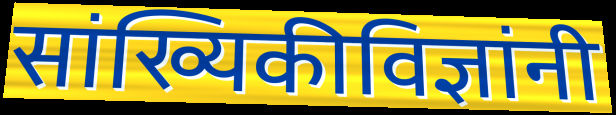
सांख्यिकीविज्ञांनी